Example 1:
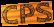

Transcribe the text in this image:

CPS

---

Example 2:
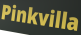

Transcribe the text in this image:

Pinkvilla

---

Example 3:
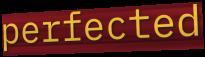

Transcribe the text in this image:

perfected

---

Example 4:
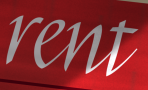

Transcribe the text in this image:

rent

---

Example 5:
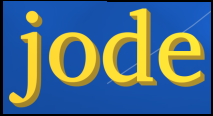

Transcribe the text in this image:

jode